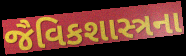
જૈવિકશાસ્ત્રના